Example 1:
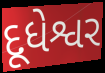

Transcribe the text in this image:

દૂધેશ્વર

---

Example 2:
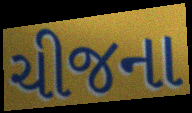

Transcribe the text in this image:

ચીજના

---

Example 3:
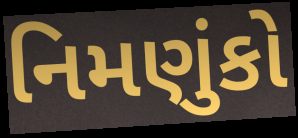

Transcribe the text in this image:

નિમણુંકો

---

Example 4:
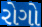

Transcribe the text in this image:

રોગો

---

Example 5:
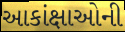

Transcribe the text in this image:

આકાંક્ષાઓની